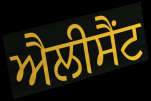
ਐਲੀਸੈਂਟ